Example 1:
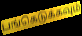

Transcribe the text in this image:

பங்கெடுக்கவும்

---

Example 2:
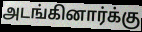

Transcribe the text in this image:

அடங்கினார்க்கு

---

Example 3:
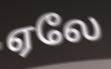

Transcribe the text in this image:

ஏலே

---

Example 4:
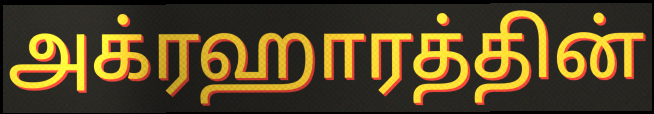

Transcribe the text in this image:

அக்ரஹாரத்தின்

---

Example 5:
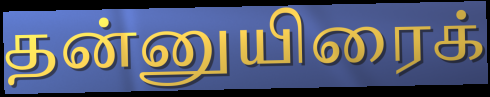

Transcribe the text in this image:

தன்னுயிரைக்